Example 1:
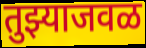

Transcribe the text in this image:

तुझ्याजवळ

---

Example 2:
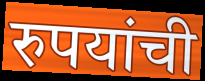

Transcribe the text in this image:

रुपयांची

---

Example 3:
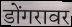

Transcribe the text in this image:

डोंगरावर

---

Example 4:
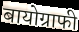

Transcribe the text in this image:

बायोग्राफी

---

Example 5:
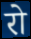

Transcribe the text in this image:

रो